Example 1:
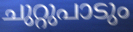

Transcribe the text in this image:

ചുറ്റുപാടും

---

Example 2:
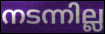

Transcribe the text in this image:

നടന്നില്ല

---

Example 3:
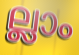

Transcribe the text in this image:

ല്ലാം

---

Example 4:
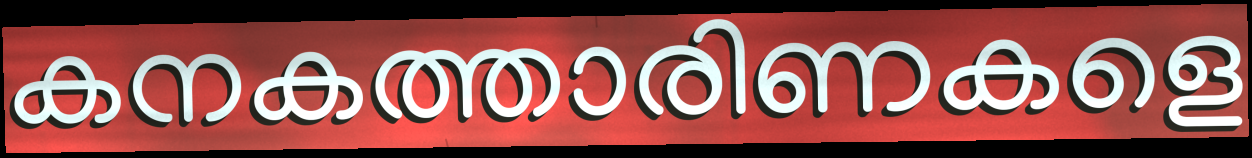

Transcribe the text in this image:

കനകത്താരിണകളെ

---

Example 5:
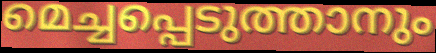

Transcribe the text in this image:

മെച്ചപ്പെടുത്താനും